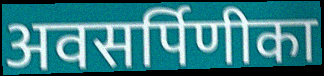
अवसर्पिणीका